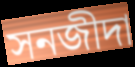
সনজীদা